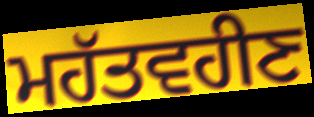
ਮਹੱਤਵਹੀਣ